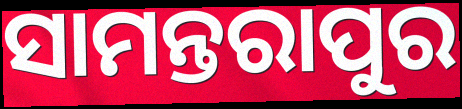
ସାମନ୍ତରାପୁର